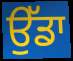
ਉੱਡਾ